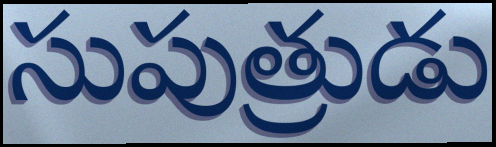
సుపుత్రుడు